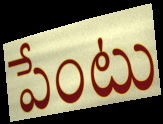
పేంటు